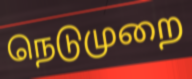
நெடுமுறை